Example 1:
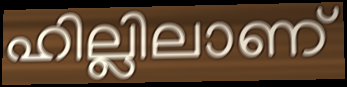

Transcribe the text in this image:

ഹില്ലിലാണ്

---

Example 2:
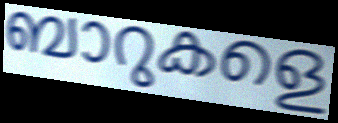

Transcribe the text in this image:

ബാറുകളെ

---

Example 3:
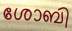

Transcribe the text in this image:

ശോബി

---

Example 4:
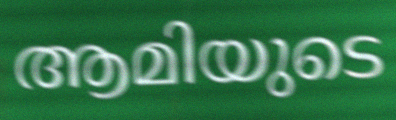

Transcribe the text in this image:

ആമിയുടെ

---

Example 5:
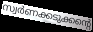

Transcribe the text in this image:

സ്വർണക്കടുക്കന്റെ